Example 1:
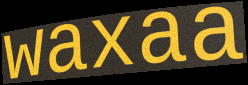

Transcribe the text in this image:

waxaa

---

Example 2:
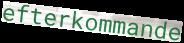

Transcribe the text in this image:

efterkommande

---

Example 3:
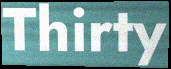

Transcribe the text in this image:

Thirty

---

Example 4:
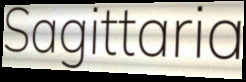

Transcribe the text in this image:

Sagittaria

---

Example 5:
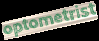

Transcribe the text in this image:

optometrist